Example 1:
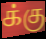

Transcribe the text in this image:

க்கு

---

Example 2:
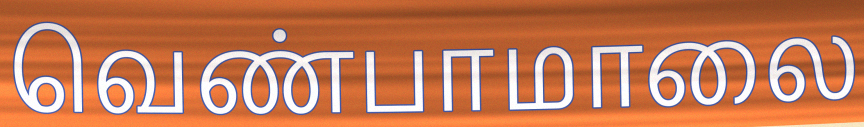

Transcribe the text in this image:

வெண்பாமாலை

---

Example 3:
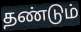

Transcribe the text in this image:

தண்டும்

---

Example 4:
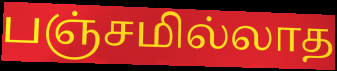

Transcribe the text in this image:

பஞ்சமில்லாத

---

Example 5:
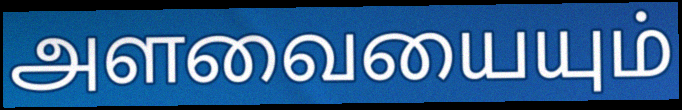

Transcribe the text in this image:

அளவையையும்